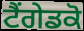
ਟੈਂਗੇਡਕੋ